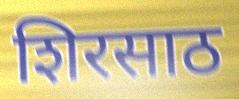
शिरसाठ